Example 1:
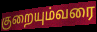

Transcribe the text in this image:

குறையும்வரை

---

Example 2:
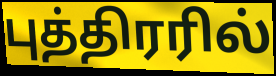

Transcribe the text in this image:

புத்திரரில்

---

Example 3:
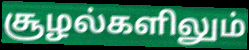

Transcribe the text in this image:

சூழல்களிலும்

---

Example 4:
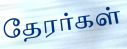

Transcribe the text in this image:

தேரர்கள்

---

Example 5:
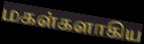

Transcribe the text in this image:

மகள்களாகிய